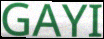
GAYI